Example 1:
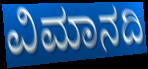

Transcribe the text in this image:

ವಿಮಾನದಿ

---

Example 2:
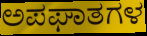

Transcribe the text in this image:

ಅಪಘಾತಗಳ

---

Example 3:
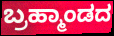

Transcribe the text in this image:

ಬ್ರಹ್ಮಾಂಡದ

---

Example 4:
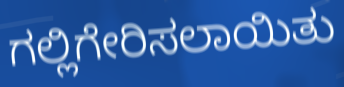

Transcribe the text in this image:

ಗಲ್ಲಿಗೇರಿಸಲಾಯಿತು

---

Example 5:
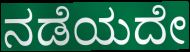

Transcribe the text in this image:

ನಡೆಯದೇ